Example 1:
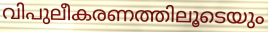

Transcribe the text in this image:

വിപുലീകരണത്തിലൂടെയും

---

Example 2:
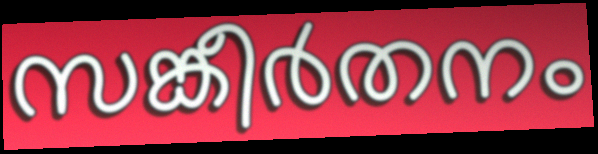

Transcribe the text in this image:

സങ്കീർതനം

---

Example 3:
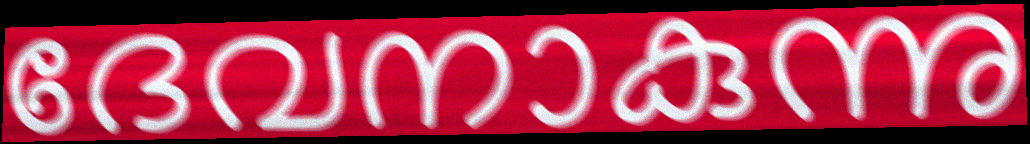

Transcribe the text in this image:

ദേവനാകുന്നു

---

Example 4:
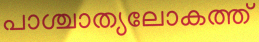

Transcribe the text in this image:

പാശ്ചാത്യലോകത്ത്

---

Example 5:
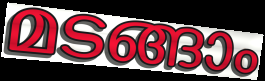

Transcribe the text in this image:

മടങ്ങാം